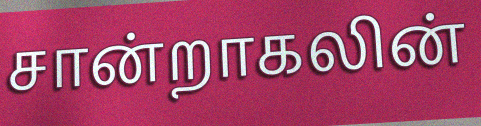
சான்றாகலின்